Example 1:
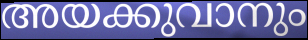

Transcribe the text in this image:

അയക്കുവാനും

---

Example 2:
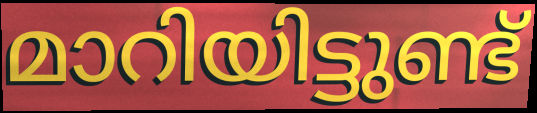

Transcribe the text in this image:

മാറിയിട്ടുണ്ട്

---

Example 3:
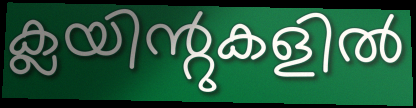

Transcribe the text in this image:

ക്ലയിന്റുകളിൽ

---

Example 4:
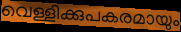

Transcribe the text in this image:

വെള്ളിക്കുപകരമായും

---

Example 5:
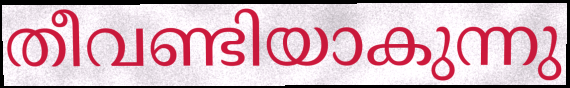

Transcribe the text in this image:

തീവണ്ടിയാകുന്നു